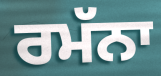
ਰਮੱਨਾ